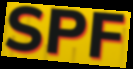
SPF